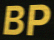
BP